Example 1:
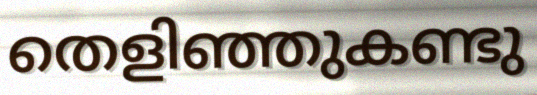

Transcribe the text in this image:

തെളിഞ്ഞുകണ്ടു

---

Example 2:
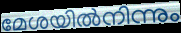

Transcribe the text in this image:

മേശയിൽനിന്നും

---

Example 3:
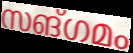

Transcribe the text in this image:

സങ്ഗമം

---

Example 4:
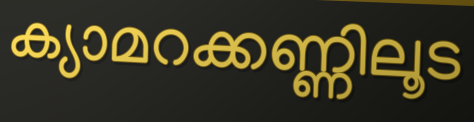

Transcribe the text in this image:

ക്യാമറക്കണ്ണിലൂട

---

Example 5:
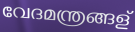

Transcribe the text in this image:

വേദമന്ത്രങ്ങള്